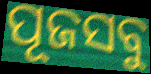
ପୂଜସବୁ